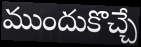
ముందుకొచ్చే